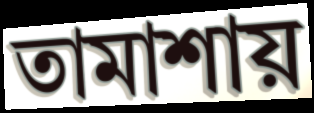
তামাশায়